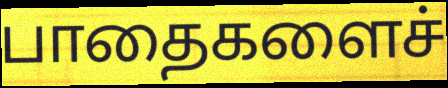
பாதைகளைச்